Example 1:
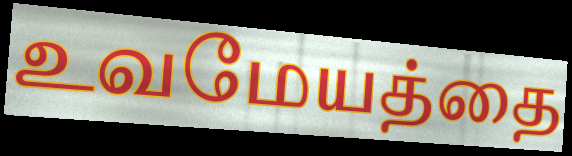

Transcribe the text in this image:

உவமேயத்தை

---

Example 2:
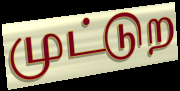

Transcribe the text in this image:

முட்டுற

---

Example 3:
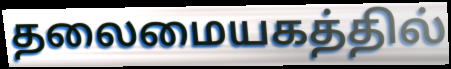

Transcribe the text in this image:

தலைமையகத்தில்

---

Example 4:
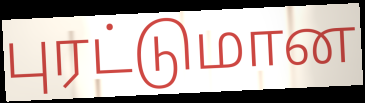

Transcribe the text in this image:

புரட்டுமான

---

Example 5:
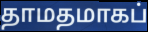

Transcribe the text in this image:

தாமதமாகப்